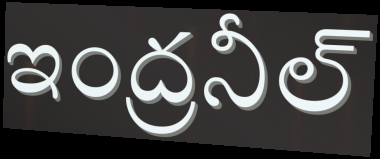
ఇంద్రనీల్